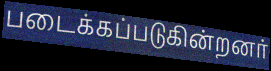
படைக்கப்படுகின்றனர்